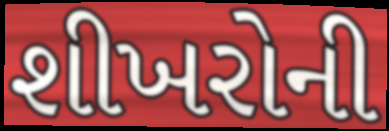
શીખરોની